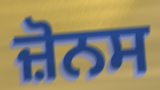
ਜ਼ੋਨਸ